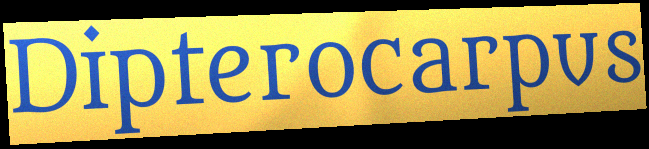
Dipterocarpus